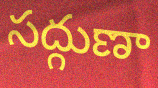
సద్గుణా